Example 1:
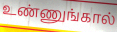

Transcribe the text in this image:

உண்ணுங்கால்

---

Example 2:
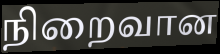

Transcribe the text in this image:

நிறைவான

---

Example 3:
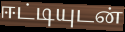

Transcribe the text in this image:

ஈட்டியுடன்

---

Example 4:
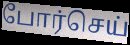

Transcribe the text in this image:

போர்செய்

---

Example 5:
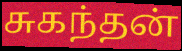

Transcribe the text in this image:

சுகந்தன்